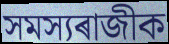
সমস্যৰাজীক